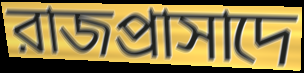
রাজপ্রাসাদে